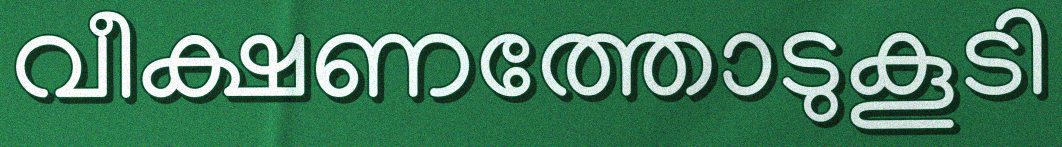
വീക്ഷണത്തോടുകൂടി